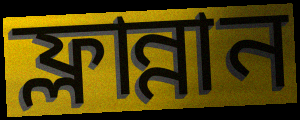
ফ্লান্নান